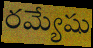
రమ్యేషు